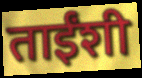
ताईंशी